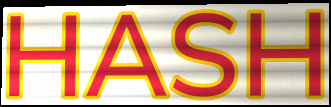
HASH